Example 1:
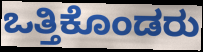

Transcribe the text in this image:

ಒತ್ತಿಕೊಂಡರು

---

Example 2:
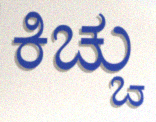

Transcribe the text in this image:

ಕಿಚ್ಚು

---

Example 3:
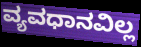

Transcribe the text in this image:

ವ್ಯವಧಾನವಿಲ್ಲ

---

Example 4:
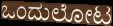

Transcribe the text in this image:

ಒಂದುಲೋಟ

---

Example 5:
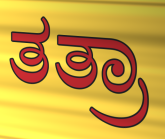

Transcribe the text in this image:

ತತ್ರಾ